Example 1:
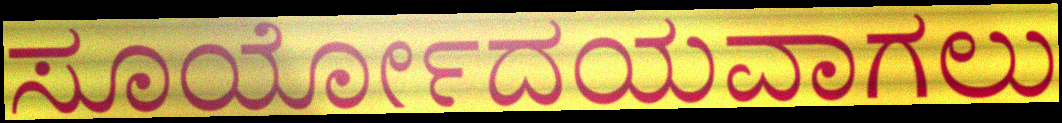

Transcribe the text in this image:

ಸೂರ್ಯೋದಯವಾಗಲು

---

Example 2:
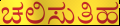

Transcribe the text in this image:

ಚಲಿಸುತಿಹ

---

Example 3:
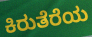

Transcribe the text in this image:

ಕಿರುತೆರೆಯ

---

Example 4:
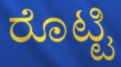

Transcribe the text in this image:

ರೊಟ್ಟಿ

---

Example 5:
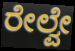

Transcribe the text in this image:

ರೇಲ್ವೇ